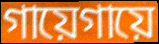
গায়েগায়ে